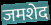
जमशेद